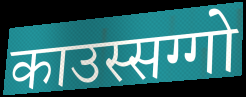
काउस्सग्गो